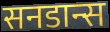
सनडान्स